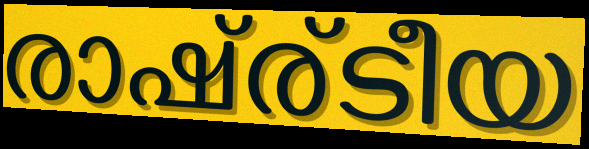
രാഷ്ര്ടീയ